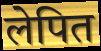
लेपित